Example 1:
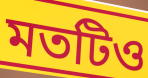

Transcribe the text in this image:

মতটিও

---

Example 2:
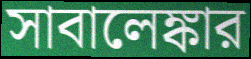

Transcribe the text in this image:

সাবালেঙ্কার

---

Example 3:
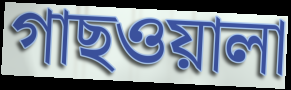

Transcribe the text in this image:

গাছওয়ালা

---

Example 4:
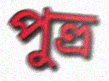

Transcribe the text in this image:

পুত্ত্র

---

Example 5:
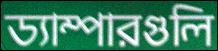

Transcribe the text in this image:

ড্যাম্পারগুলি